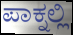
ಪಾಕ್ನಲ್ಲಿ